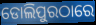
ଡୋଲିପୁରଠାରେ